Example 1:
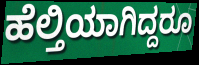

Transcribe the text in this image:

ಹೆಲ್ತಿಯಾಗಿದ್ದರೂ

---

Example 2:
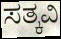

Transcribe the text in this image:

ಸತ್ಕವಿ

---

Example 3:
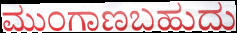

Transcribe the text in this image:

ಮುಂಗಾಣಬಹುದು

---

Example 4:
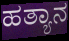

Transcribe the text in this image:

ಹತ್ಯಾನ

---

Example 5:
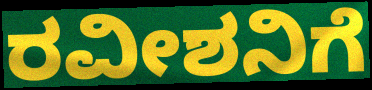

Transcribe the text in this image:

ರವೀಶನಿಗೆ